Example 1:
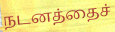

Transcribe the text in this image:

நடனத்தைச்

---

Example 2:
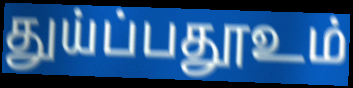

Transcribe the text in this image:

துய்ப்பதூஉம்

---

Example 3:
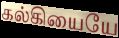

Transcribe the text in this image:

கல்கியையே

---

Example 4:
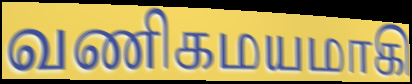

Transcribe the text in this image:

வணிகமயமாகி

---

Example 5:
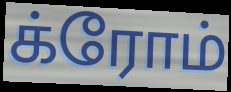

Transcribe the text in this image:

க்ரோம்